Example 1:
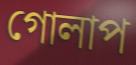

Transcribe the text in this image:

গোলাপ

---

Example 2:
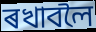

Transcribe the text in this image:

ৰখাবলৈ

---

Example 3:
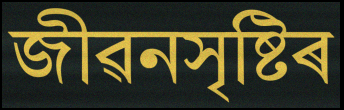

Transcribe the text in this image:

জীৱনসৃষ্টিৰ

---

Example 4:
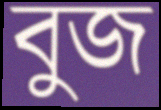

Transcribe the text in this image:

বুজ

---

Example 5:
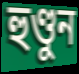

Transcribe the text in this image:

হুণ্ডুন